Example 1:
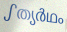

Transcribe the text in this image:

ഽത്യർഥം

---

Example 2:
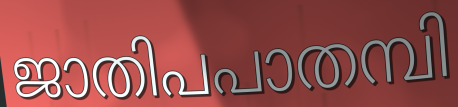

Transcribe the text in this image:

ജാതിപപാതമ്പി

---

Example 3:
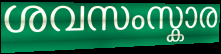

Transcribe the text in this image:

ശവസംസ്കാര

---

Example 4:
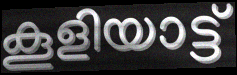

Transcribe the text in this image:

കൂളിയാട്ട്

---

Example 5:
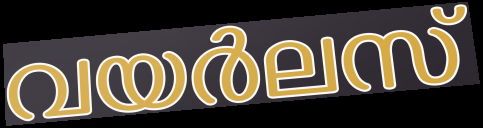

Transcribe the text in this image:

വയർലസ്